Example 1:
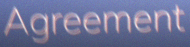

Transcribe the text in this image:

Agreement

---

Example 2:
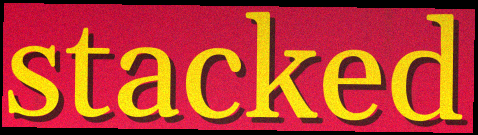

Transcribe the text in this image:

stacked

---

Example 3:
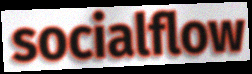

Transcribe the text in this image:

socialflow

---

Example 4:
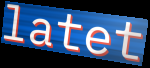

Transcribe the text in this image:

latet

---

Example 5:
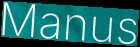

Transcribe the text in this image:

Manus